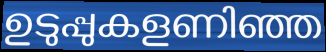
ഉടുപ്പുകളണിഞ്ഞ